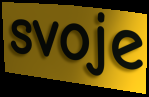
svoje